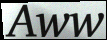
Aww